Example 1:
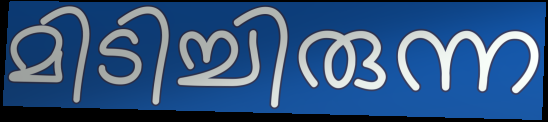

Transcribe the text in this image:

മിടിച്ചിരുന്ന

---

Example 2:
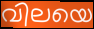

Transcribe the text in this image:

വിലയെ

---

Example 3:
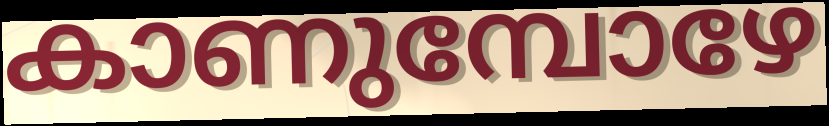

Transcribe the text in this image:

കാണുമ്പോഴേ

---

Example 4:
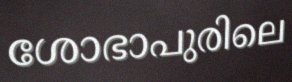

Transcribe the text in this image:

ശോഭാപുരിലെ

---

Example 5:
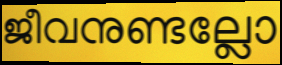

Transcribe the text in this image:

ജീവനുണ്ടല്ലോ